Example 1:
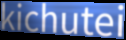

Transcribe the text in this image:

kichutei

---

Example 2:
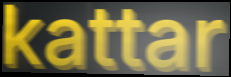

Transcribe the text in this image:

kattar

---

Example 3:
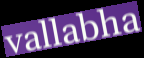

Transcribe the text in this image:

vallabha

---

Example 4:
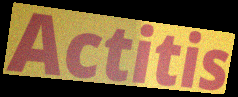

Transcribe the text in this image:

Actitis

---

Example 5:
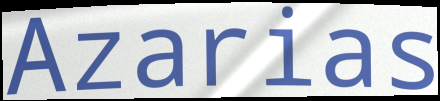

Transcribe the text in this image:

Azarias